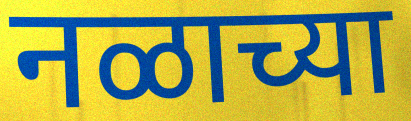
नळाच्या